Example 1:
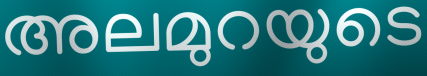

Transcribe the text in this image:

അലമുറയുടെ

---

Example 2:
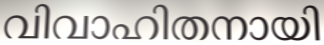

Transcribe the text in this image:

വിവാഹിതനായി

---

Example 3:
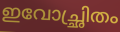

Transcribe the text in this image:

ഇവോച്ഛ്രിതം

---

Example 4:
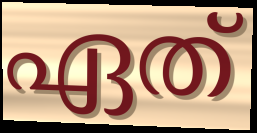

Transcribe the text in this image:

ഏത്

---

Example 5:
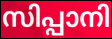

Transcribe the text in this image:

സിപ്പാനി